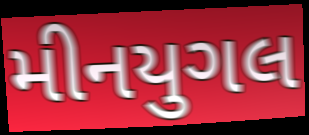
મીનયુગલ